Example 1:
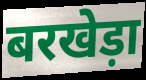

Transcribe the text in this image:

बरखेड़ा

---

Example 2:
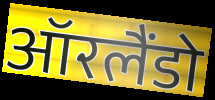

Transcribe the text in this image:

ऑरलैंडो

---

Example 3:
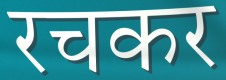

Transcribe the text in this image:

रचकर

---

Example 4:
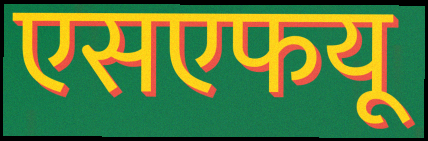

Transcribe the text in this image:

एसएफयू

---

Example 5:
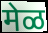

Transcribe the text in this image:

मेळ